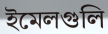
ইমেলগুলি